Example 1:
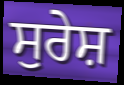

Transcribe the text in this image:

ਸੁਰੇਸ਼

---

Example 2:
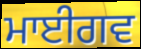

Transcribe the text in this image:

ਮਾਈਗਵ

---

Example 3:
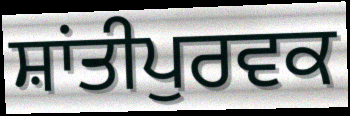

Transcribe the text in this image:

ਸ਼ਾਂਤੀਪੁਰਵਕ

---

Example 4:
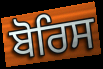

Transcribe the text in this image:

ਬੋਰਿਸ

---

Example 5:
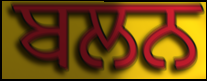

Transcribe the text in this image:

ਬਲਨ